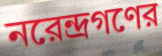
নরেন্দ্রগণের